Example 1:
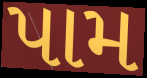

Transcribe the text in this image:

પામ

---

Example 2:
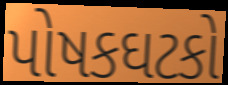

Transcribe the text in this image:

પોષકઘટકો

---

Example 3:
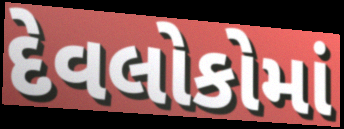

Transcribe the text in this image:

દેવલોકોમાં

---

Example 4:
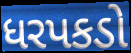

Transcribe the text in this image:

ધરપકડો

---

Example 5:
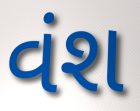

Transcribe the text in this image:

વંશ